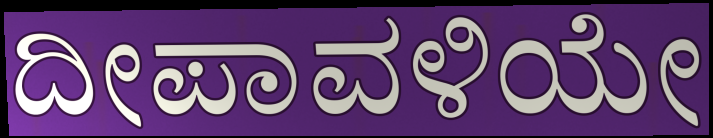
ದೀಪಾವಳಿಯೇ